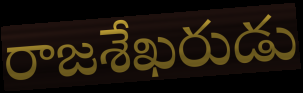
రాజశేఖరుడు